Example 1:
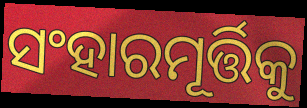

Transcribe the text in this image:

ସଂହାରମୂର୍ତ୍ତିକୁ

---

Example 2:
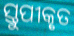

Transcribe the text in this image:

ସ୍ତୁପୀକୃତ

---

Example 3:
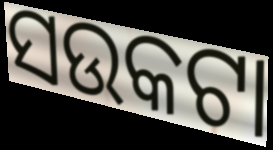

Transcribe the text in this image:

ସଉକଟା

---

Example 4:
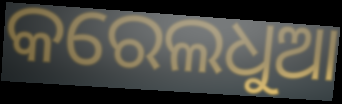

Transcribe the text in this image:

କରେଲଧୁଆ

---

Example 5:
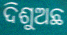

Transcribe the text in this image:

ଦିଶୁଅଛ